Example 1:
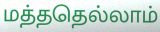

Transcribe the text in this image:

மத்ததெல்லாம்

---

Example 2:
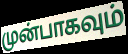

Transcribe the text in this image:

முன்பாகவும்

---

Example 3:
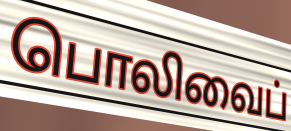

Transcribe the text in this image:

பொலிவைப்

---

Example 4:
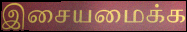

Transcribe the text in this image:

இசையமைக்க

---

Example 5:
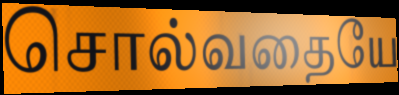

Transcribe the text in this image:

சொல்வதையே